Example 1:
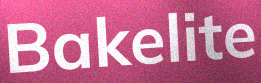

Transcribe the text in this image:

Bakelite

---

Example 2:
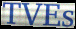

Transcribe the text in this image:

TVEs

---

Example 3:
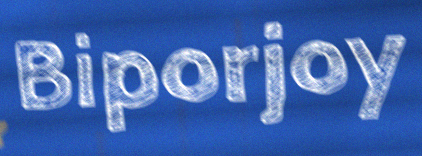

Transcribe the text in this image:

Biporjoy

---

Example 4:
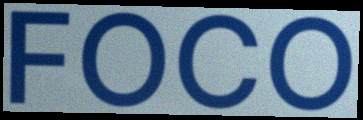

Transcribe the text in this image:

FOCO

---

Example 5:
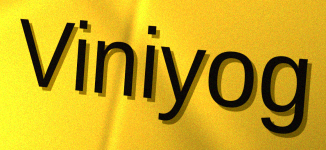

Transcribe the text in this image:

Viniyog